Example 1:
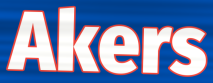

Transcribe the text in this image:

Akers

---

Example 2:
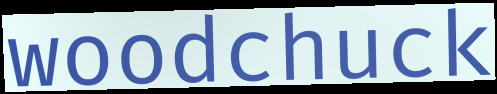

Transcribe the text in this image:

woodchuck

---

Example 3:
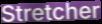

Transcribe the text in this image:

Stretcher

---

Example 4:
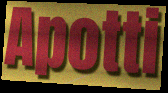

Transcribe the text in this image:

Apotti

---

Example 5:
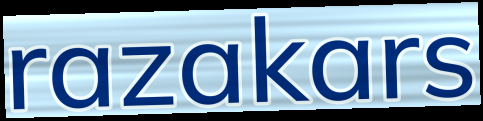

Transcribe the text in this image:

razakars